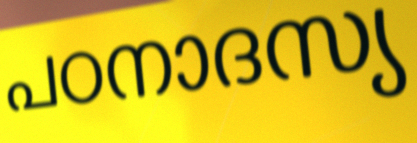
പഠനാദസ്യ